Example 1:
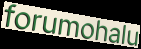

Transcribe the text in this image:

forumohalu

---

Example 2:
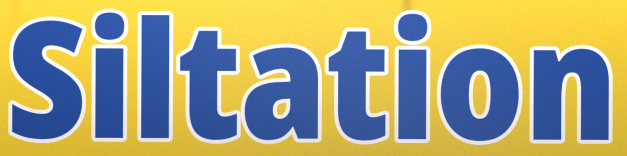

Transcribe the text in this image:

Siltation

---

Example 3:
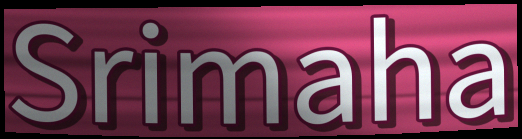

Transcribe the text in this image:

Srimaha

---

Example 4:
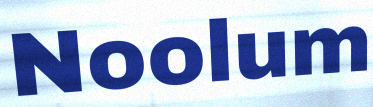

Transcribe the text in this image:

Noolum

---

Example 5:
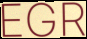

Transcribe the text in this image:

EGR